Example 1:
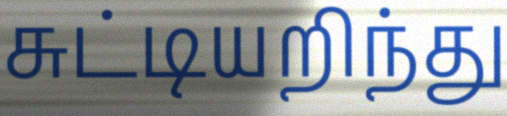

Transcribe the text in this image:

சுட்டியறிந்து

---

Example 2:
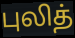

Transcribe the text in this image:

புலித்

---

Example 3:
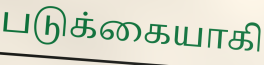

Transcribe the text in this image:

படுக்கையாகி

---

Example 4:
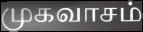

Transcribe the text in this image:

முகவாசம்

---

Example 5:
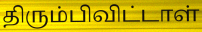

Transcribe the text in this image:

திரும்பிவிட்டாள்